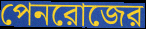
পেনরোজের